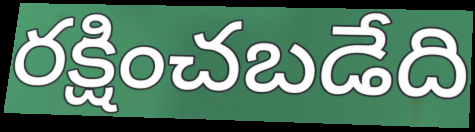
రక్షించబడేది